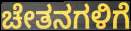
ಚೇತನಗಳಿಗೆ